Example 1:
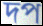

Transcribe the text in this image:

দপ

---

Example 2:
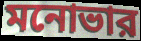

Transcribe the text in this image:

মনোভার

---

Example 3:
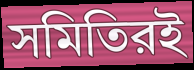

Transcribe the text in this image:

সমিতিরই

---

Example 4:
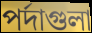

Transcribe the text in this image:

পর্দাগুলা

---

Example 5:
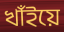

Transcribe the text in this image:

খাঁইয়ে